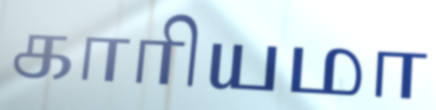
காரியமா